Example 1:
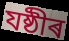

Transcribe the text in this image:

যষ্ঠীৰ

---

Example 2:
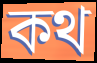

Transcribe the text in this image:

কথ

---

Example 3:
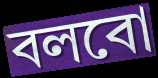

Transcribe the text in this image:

বলবো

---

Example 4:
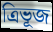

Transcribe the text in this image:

ত্ৰিভূজ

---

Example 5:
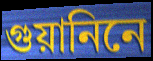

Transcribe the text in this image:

গুয়ানিনে